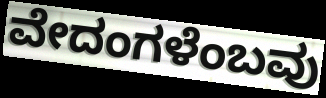
ವೇದಂಗಳೆಂಬವು